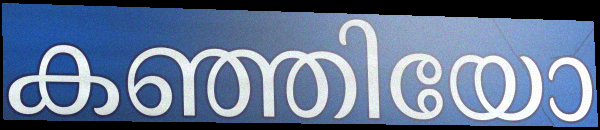
കഞ്ഞിയോ